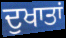
ਦੁਖਾਤਾਂ